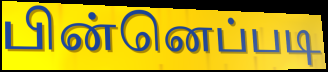
பின்னெப்படி